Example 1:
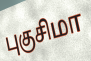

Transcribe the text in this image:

புகுசிமா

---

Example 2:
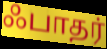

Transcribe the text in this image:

ஃபாதர்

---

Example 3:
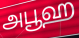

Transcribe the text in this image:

அபூஹ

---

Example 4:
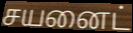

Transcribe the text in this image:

சயனைட்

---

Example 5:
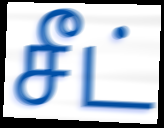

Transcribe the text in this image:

சீட்